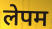
लेपम